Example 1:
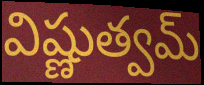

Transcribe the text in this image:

విష్ణుత్వమ్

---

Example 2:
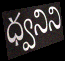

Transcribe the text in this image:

ధ్వనిని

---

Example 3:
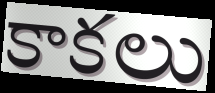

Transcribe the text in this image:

కాకలు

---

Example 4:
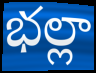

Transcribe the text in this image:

భల్లా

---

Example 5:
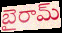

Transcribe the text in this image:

బైరామ్